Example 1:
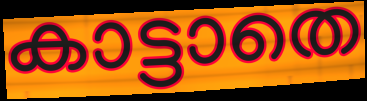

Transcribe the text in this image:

കാട്ടാതെ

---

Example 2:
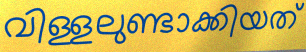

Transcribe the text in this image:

വിള്ളലുണ്ടാക്കിയത്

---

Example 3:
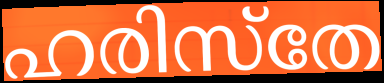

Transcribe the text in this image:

ഹരിസ്തേ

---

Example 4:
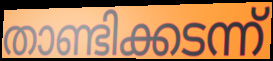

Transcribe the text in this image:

താണ്ടിക്കടന്ന്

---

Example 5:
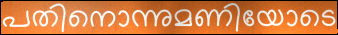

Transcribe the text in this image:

പതിനൊന്നുമണിയോടെ